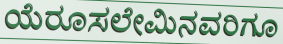
ಯೆರೂಸಲೇಮಿನವರಿಗೂ